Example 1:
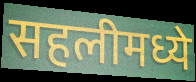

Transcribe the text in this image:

सहलीमध्ये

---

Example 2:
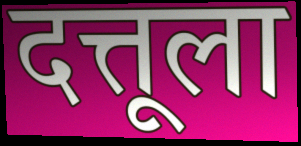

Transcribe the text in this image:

दत्तूला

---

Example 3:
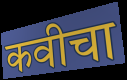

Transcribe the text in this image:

कवीचा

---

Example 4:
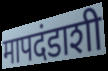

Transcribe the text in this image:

मापदंडाशी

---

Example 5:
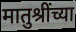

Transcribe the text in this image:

मातुश्रींच्या